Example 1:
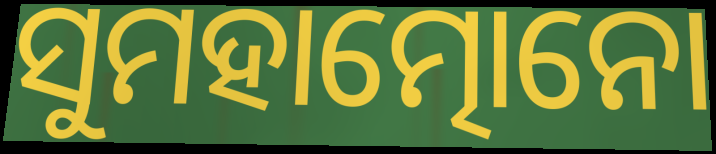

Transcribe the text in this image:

ସୁମହାତ୍ମୋନୋ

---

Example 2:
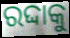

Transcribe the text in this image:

ରଦ୍ଦାକୁ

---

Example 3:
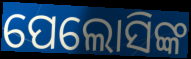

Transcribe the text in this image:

ପେଲୋସିଙ୍କ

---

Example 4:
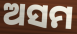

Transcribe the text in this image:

ଅସମ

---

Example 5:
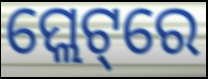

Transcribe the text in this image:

ପ୍ଲେଟ୍‌ରେ